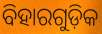
ବିହାରଗୁଡ଼ିକ